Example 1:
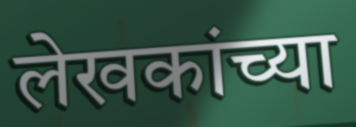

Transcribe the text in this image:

लेखकांच्या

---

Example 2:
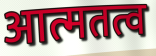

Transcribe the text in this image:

आत्मतत्व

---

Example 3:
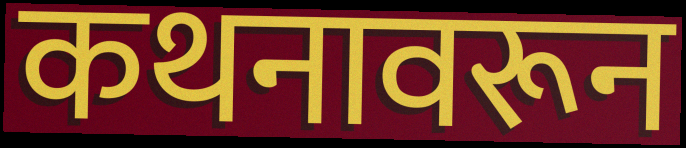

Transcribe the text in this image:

कथनावरून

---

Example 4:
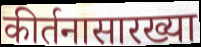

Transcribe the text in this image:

कीर्तनासारख्या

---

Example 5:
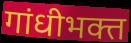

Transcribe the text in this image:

गांधीभक्त